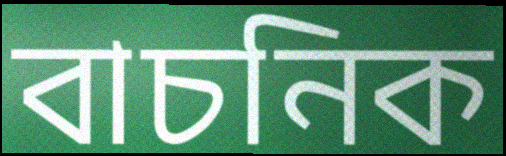
বাচনিক